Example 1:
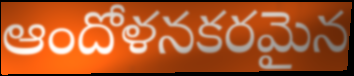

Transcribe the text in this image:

ఆందోళనకరమైన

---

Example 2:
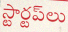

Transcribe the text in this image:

స్టార్టప్‌లు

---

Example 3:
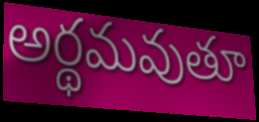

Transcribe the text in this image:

అర్థమవుతూ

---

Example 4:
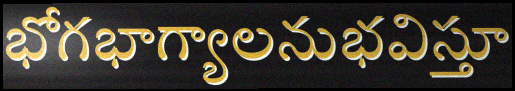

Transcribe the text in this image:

భోగభాగ్యాలనుభవిస్తూ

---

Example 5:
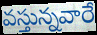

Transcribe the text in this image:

వస్తున్నవారే